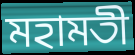
মহামতী